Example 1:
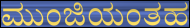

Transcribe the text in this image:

ಮುಂಜಿಯಂತಹ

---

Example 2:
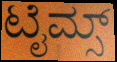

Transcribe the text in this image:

ಟೈಮ್ಸ್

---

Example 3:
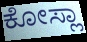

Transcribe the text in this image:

ಕೋಸ್ಲಾ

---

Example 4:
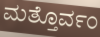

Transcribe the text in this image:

ಮತ್ತೊರ್ವಂ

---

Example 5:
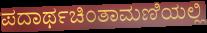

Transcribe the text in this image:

ಪದಾರ್ಥಚಿಂತಾಮಣಿಯಲ್ಲಿ